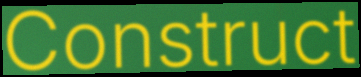
Construct